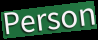
Person